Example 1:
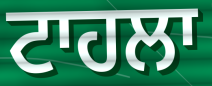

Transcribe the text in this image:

ਟਾਹਲਾ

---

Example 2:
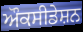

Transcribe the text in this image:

ਔਕਸੀਡੇਸ਼ਨ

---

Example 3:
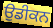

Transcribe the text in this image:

ਉਡੀਕਨ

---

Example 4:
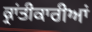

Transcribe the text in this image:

ਕ੍ਰਾਂਤੀਕਾਰੀਆਂ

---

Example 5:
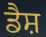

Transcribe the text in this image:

ਡੈਸ਼